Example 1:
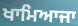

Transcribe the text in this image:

ਖਾਮਿਆਜਾ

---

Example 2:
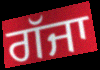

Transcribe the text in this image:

ਗੱਜਾ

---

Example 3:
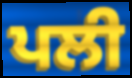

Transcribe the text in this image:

ਪਲੀ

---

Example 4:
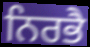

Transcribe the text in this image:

ਨਿਰਭੈ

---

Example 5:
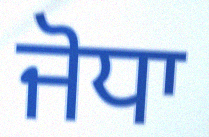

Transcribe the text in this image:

ਜੋਧਾ